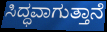
ಸಿದ್ಧವಾಗುತ್ತಾನೆ